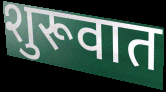
शुरूवात